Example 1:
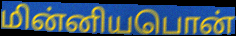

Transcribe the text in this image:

மின்னியபொன்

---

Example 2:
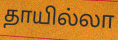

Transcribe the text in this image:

தாயில்லா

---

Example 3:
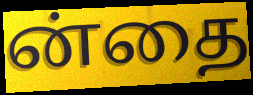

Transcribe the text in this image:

ன்தை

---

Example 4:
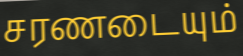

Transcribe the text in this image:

சரணடையும்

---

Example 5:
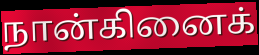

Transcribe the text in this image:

நான்கினைக்